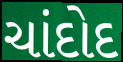
ચાંદોદ